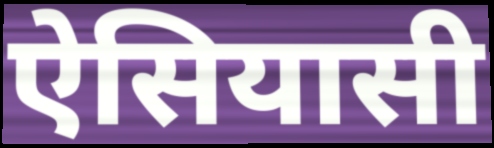
ऐसियासी